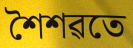
শৈশৱতে